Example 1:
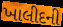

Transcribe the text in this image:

ખાલીદની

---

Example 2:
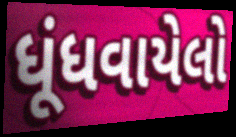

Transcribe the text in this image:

ધૂંધવાયેલો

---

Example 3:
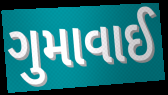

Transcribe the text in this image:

ગુમાવાઈ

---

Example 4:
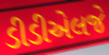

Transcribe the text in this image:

ડીડીએલજે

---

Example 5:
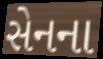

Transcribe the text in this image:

સેનના